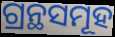
ଗ୍ରନ୍ଥସମୂହ